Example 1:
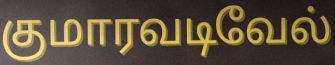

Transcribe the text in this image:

குமாரவடிவேல்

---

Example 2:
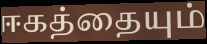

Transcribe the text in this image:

ஈகத்தையும்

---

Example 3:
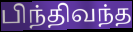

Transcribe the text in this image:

பிந்திவந்த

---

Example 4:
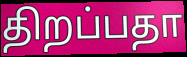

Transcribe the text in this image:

திறப்பதா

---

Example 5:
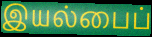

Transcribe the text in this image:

இயல்பைப்